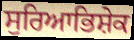
ਸੁਰਿਆਭਿਸ਼ੇਕ